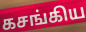
கசங்கிய